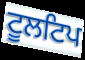
ਟੂਲਟਿਪ